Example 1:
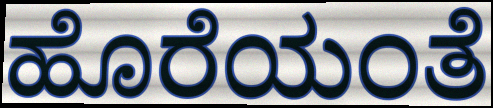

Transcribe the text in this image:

ಹೊರೆಯಂತೆ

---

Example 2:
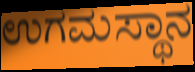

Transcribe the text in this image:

ಉಗಮಸ್ಥಾನ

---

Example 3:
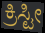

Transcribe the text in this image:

ಕ್ರಿಸ್ಟೀ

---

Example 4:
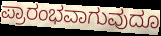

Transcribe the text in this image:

ಪ್ರಾರಂಭವಾಗುವುದೂ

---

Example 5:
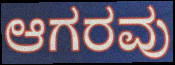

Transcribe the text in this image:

ಆಗರವು